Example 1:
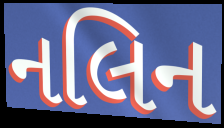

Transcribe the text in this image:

નલિન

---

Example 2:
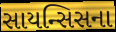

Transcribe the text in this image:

સાયન્સિસના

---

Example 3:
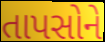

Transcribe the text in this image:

તાપસોને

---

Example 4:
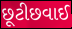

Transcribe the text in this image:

છૂટીછવાઈ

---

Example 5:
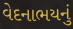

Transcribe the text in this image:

વેદનાભયનું